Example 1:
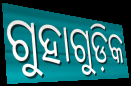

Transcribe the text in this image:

ଗୁହାଗୁଡ଼ିକ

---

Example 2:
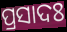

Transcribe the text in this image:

ପ୍ରସାଦଃ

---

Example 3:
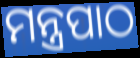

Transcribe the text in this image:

ମନ୍ତ୍ରପାଠ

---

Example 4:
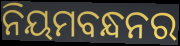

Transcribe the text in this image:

ନିୟମବନ୍ଧନର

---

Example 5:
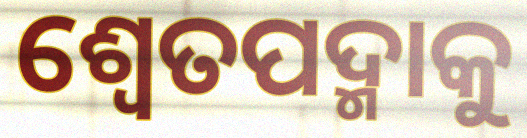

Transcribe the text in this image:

ଶ୍ୱେତପଦ୍ମାକୁ